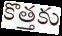
కొత్తకు